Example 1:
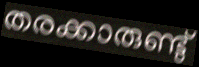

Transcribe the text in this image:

തരക്കാരുണ്ടു്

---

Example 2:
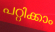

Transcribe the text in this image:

പറ്റിക്കാം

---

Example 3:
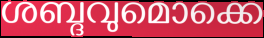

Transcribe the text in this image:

ശബ്ദവുമൊക്കെ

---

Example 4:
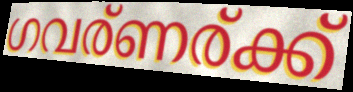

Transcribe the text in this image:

ഗവര്ണര്ക്ക്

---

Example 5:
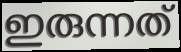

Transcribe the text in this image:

ഇരുന്നത്